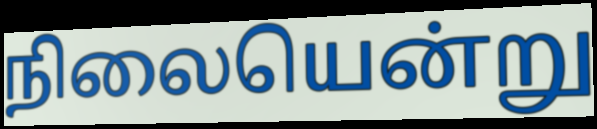
நிலையென்று